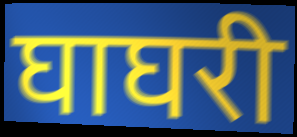
घाघरी